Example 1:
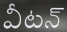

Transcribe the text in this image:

వీటన్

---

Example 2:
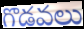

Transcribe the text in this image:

గొడవలు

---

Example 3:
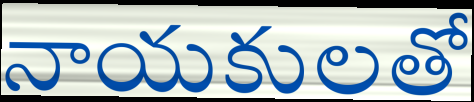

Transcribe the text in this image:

నాయకులతో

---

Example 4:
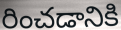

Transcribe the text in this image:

రించడానికి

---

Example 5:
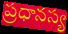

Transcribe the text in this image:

ప్రధానస్య